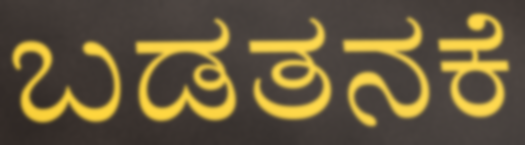
ಬಡತನಕೆ